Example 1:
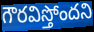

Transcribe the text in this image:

గౌరవిస్తోందని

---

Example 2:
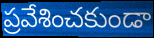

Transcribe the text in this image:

ప్రవేశించకుండా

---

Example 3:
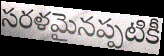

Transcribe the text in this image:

సరళమైనప్పటికీ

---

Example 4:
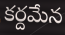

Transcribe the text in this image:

కర్దమేన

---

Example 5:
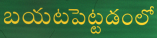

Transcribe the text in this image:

బయటపెట్టడంలో